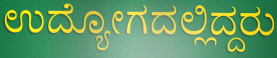
ಉದ್ಯೋಗದಲ್ಲಿದ್ದರು